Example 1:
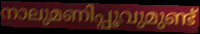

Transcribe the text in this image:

നാലുമണിപ്പൂവുമുണ്ട്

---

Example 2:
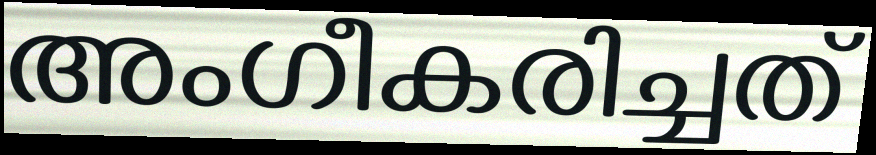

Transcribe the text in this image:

അംഗീകരിച്ചത്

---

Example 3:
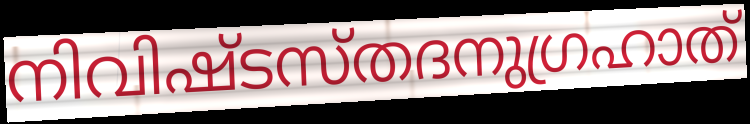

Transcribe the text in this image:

നിവിഷ്ടസ്തദനുഗ്രഹാത്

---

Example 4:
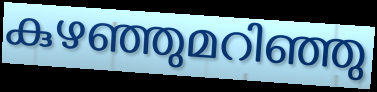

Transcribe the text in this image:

കുഴഞ്ഞുമറിഞ്ഞു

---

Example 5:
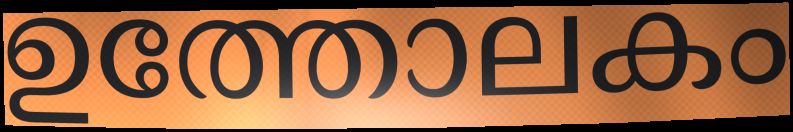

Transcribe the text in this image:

ഉത്തോലകം